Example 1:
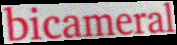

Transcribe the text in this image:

bicameral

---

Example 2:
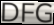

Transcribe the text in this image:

DFG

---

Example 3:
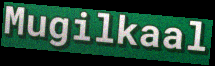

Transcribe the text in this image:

Mugilkaal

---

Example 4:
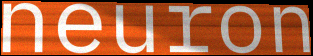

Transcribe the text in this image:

neuron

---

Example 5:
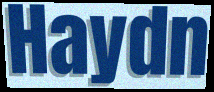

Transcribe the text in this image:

Haydn